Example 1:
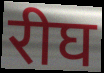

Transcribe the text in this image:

रीघ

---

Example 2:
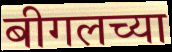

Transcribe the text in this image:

बीगलच्या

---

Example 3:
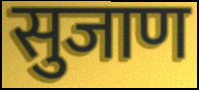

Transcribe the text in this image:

सुजाण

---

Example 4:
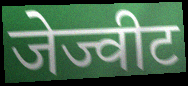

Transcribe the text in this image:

जेज्वीट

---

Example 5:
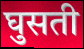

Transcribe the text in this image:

घुसती